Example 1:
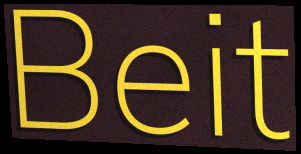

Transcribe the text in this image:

Beit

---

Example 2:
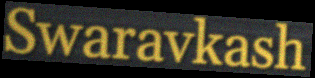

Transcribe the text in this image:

Swaravkash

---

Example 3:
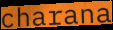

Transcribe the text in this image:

charana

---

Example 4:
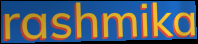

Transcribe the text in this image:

rashmika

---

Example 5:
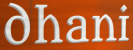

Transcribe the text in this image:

dhani